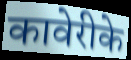
कावेरीके